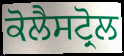
ਕੋਲੈਸਟ੍ਰੋਲ